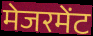
मेजरमेंट